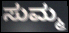
ಸುಮ್ಮ